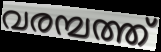
വരമ്പത്ത്